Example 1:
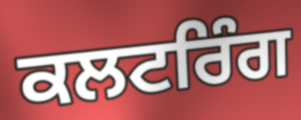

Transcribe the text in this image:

ਕਲਟਰਿੰਗ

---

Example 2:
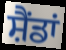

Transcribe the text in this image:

ਸ਼ੈਂਡਾਂ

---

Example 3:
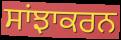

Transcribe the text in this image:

ਸਾਂਝਾਕਰਨ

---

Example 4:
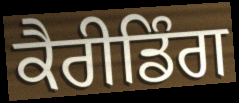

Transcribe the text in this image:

ਕੈਰੀਡਿੰਗ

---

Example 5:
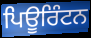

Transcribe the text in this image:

ਪਿਊਰਿੰਟਨ